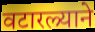
वटारल्याने